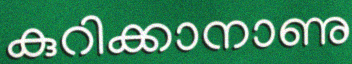
കുറിക്കാനാണു